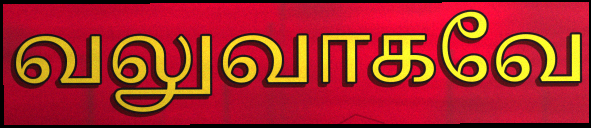
வலுவாகவே